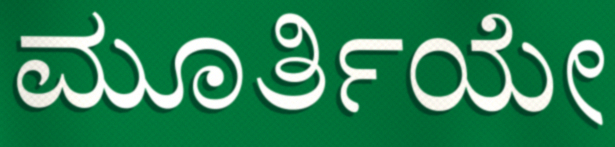
ಮೂರ್ತಿಯೇ